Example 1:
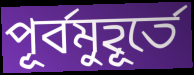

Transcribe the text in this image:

পূর্বমুহূর্তে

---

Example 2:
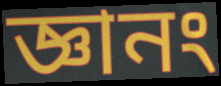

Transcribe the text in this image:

জ্ঞানং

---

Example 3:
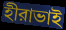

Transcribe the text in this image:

হীরাভাই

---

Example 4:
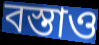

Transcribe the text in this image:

বস্তাও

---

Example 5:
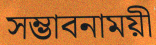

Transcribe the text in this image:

সম্ভাবনাময়ী